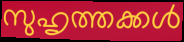
സുഹൃത്തക്കൾ